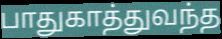
பாதுகாத்துவந்த